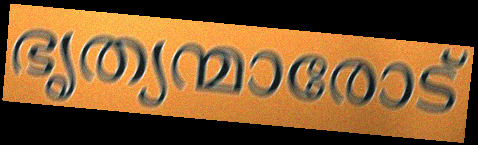
ഭൃത്യന്മാരോട്